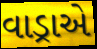
વાડ્રાએ